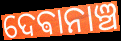
ଦେଵାନାଞ୍ଚ